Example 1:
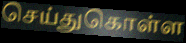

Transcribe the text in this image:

செய்துகொள்ள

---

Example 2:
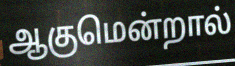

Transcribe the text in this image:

ஆகுமென்றால்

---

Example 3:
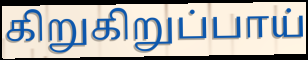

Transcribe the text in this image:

கிறுகிறுப்பாய்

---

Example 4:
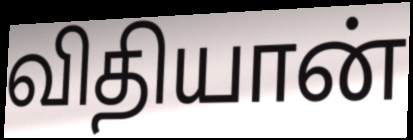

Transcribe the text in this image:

விதியான்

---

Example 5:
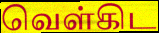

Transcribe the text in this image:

வெள்கிட